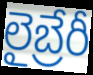
లైబ్రేరీ